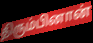
திரும்பினான்